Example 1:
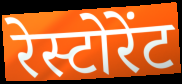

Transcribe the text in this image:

रेस्टोरेंट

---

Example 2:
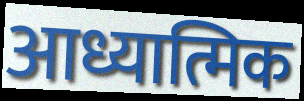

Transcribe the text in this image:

आध्यात्मिक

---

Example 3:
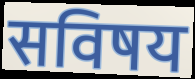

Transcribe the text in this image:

सविषय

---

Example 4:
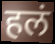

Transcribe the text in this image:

हलं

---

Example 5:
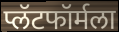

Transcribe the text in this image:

प्लॅटफॉर्मला